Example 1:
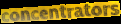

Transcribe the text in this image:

concentrators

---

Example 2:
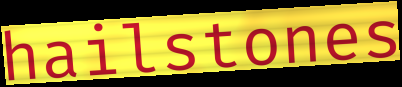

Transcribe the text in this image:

hailstones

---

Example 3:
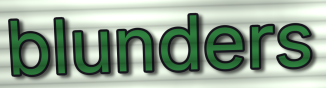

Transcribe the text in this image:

blunders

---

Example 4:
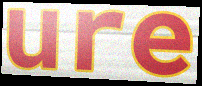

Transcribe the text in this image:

ure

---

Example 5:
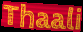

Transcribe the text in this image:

Thaali